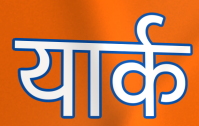
यार्क